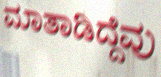
ಮಾತಾಡಿದ್ದೆವು